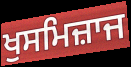
ਖੁਸਮਿਜ਼ਾਜ